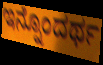
ಇನ್ನೊಂದರ್ಥ